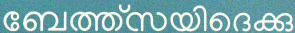
ബേത്ത്സയിദെക്കു